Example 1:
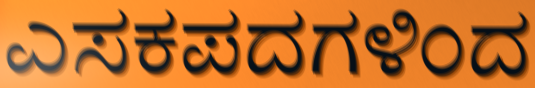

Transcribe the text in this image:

ಎಸಕಪದಗಳಿಂದ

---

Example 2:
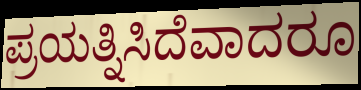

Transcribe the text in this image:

ಪ್ರಯತ್ನಿಸಿದೆವಾದರೂ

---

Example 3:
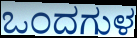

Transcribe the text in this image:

ಒಂದಗುಳ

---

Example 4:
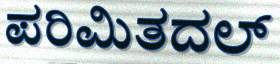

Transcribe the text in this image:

ಪರಿಮಿತದಲ್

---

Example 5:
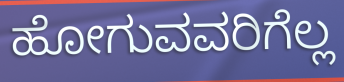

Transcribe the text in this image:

ಹೋಗುವವರಿಗೆಲ್ಲ